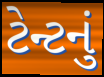
ટેન્ટનું